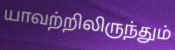
யாவற்றிலிருந்தும்